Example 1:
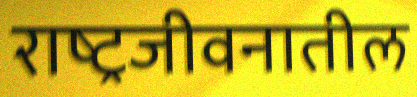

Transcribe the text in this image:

राष्ट्रजीवनातील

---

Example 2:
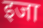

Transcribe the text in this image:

इजा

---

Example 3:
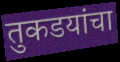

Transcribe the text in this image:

तुकडयांचा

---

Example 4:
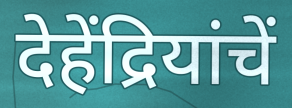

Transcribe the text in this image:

देहेंद्रियांचें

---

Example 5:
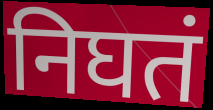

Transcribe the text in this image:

निघतं